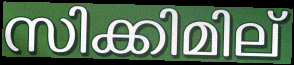
സിക്കിമില്